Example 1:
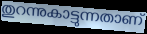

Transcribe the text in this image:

തുറന്നുകാട്ടുന്നതാണ്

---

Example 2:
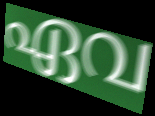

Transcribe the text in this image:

ഏവ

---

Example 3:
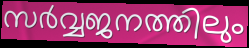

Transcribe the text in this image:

സർവ്വജനത്തിലും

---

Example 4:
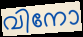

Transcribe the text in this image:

വിനോ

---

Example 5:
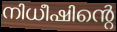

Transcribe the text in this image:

നിധീഷിന്റെ